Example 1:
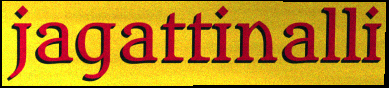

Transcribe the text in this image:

jagattinalli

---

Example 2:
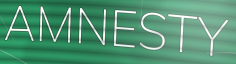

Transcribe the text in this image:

AMNESTY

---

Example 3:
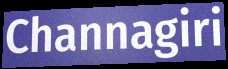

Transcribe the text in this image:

Channagiri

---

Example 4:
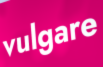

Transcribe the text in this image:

vulgare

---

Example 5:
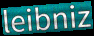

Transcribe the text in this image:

leibniz